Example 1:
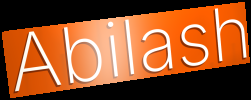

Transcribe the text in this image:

Abilash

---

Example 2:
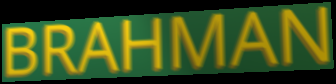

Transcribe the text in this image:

BRAHMAN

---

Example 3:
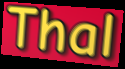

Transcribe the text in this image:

Thal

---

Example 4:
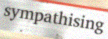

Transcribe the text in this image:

sympathising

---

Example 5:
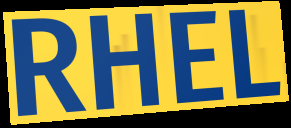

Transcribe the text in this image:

RHEL